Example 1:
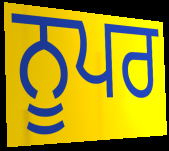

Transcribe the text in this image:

ਨੂਪਰ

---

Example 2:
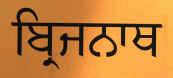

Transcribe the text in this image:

ਬ੍ਰਿਜਨਾਥ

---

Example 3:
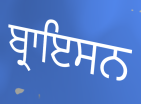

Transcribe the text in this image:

ਬ੍ਰਾਇਸਨ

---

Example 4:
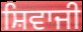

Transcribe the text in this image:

ਸ਼ਿਵਾਜੀ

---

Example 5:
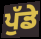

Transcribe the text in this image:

ਪੁੱਡੇ